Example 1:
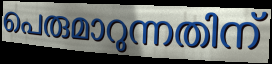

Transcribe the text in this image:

പെരുമാറുന്നതിന്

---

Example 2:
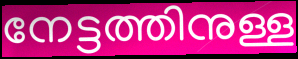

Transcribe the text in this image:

നേട്ടത്തിനുള്ള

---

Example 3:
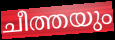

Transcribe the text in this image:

ചീത്തയും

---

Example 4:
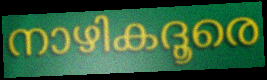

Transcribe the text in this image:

നാഴികദൂരെ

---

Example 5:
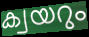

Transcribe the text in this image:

ക്വയറും